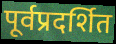
पूर्वप्रदर्शित